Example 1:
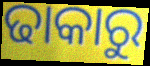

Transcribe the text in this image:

ଢାକାରୁ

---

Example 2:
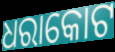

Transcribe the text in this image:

ଧରାକୋଟ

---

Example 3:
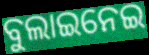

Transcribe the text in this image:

ବୁଲାଇନେଇ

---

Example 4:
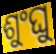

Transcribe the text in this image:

ଶୁଂଘୁ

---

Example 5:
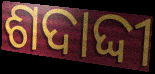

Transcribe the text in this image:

ଶଦାଦ୍ଦୀ